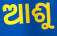
ଆଶୁ